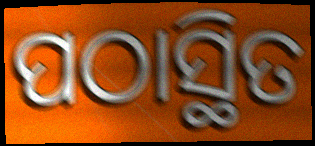
ପଠାସ୍ଥିତ